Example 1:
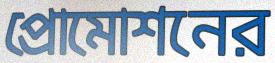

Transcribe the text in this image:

প্রোমোশনের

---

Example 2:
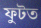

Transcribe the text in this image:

ফুটত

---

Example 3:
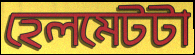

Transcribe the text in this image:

হেলমেটটা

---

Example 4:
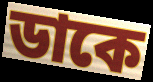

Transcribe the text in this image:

ডাকে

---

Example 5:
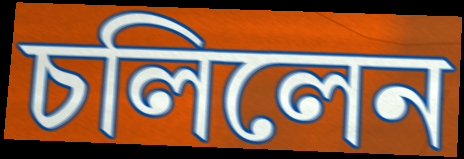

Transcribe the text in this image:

চলিলেন